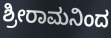
ಶ್ರೀರಾಮನಿಂದ